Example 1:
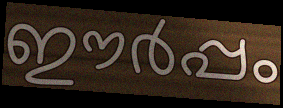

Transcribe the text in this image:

ഈർപ്പം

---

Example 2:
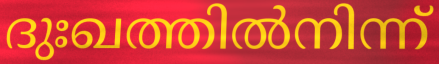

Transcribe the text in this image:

ദുഃഖത്തിൽനിന്ന്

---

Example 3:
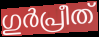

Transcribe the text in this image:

ഗുർപ്രീത്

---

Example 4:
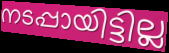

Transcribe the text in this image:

നടപ്പായിട്ടില്ല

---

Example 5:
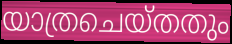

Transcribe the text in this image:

യാത്രചെയ്തതും